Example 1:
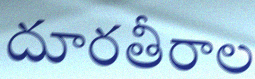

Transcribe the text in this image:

దూరతీరాల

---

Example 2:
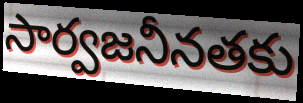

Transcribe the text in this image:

సార్వజనీనతకు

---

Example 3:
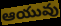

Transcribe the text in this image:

ఆయువు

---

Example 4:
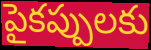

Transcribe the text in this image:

పైకప్పులకు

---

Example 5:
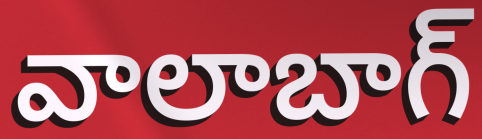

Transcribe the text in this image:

వాలాబాగ్